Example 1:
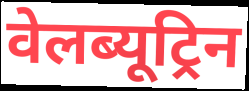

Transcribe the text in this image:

वेलब्यूट्रिन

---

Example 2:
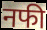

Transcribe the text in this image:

नफी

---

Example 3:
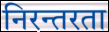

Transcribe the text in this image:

निरन्तरता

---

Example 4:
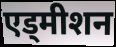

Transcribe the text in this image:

एड्मीशन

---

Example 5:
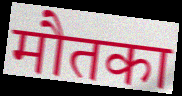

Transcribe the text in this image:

मौतका